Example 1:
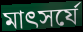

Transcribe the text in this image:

মাৎসর্যে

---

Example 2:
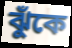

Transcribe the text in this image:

ঝুঁকে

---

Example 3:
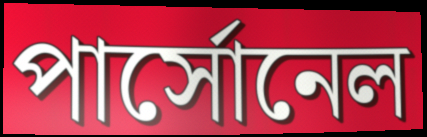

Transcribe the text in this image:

পার্সোনেল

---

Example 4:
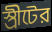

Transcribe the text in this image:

স্ত্রীটের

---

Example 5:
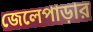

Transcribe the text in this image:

জেলেপাড়ার